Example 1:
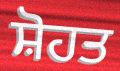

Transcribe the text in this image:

ਸ਼ੋਹਤ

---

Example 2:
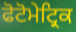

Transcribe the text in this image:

ਫੋਟੋਮੇਟ੍ਰਿਕ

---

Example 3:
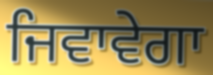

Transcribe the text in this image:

ਜਿਵਾਵੇਗਾ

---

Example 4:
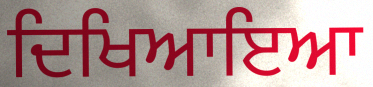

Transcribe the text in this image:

ਦਿਖਿਆਇਆ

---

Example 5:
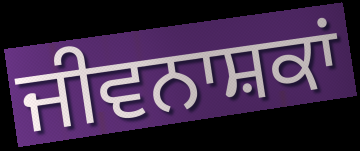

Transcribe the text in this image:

ਜੀਵਨਾਸ਼ਕਾਂ